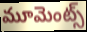
మూమెంట్స్